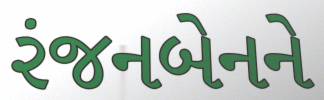
રંજનબેનને